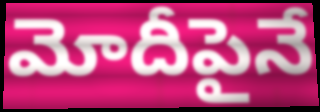
మోదీపైనే